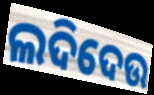
ଲଦିଦେଉ